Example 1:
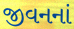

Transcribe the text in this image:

જીવનનાં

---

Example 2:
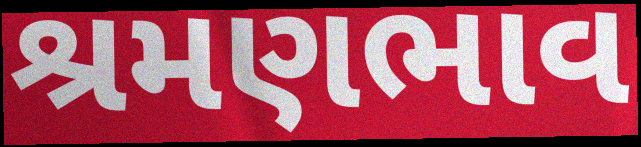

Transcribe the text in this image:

શ્રમણભાવ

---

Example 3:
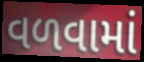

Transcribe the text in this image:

વળવામાં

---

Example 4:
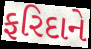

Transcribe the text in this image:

ફરિદાને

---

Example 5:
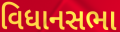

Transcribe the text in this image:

વિધાનસભા